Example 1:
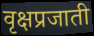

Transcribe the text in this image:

वृक्षप्रजाती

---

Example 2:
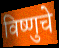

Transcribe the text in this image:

विष्णुचे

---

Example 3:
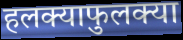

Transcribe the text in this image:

हलक्याफुलक्या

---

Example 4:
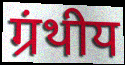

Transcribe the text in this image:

ग्रंथीय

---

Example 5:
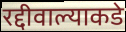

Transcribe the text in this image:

रद्दीवाल्याकडे